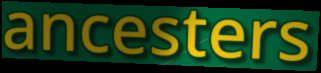
ancesters